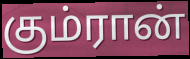
கும்ரான்